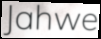
Jahwe